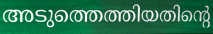
അടുത്തെത്തിയതിന്റെ